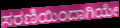
ಸರಣಿಯಿಂದಾಗಿಯೇ